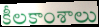
కీలకాంశాలు